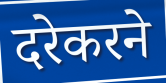
दरेकरने